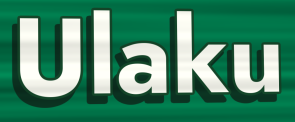
Ulaku